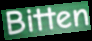
Bitten